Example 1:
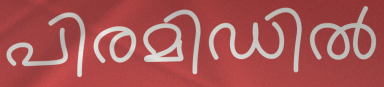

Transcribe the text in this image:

പിരമിഡിൽ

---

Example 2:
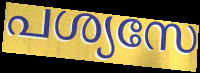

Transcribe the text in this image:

പശ്യസേ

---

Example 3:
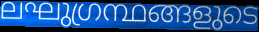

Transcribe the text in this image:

ലഘുഗ്രന്ഥങ്ങളുടെ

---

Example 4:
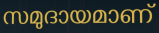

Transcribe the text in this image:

സമുദായമാണ്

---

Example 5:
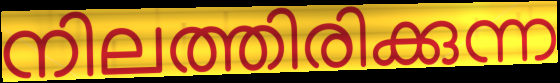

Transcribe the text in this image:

നിലത്തിരിക്കുന്ന